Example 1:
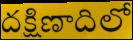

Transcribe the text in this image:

దక్షిణాదిలో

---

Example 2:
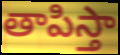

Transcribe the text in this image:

తాపిస్తా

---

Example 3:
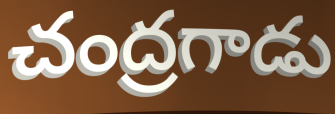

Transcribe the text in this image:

చంద్రగాడు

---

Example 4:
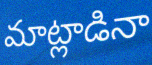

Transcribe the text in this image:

మాట్లాడినా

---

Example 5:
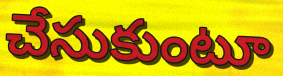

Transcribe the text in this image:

చేసుకుంటూ